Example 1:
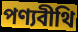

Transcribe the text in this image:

পণ্যবীথি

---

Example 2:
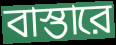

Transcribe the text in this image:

বাস্তারে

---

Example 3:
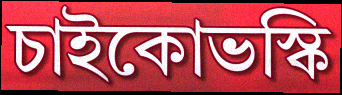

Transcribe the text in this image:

চাইকোভস্কি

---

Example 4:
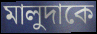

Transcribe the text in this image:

মালুদাকে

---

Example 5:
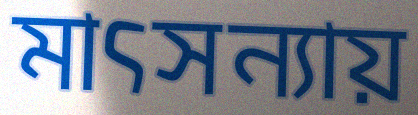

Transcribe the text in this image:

মাৎসন্যায়